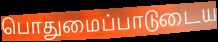
பொதுமைப்பாடுடைய